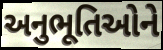
અનુભૂતિઓને